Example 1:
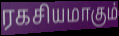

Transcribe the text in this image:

ரகசியமாகும்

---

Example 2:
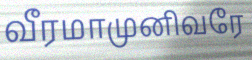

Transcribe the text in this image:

வீரமாமுனிவரே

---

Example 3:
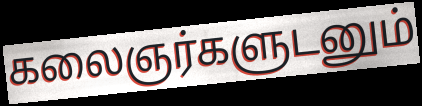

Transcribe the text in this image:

கலைஞர்களுடனும்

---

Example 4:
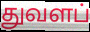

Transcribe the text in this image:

துவளப்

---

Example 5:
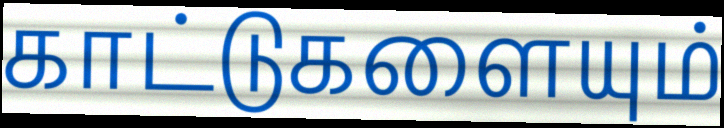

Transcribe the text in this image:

காட்டுகளையும்